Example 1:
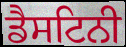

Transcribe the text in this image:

ਡੈਸਟਿਨੀ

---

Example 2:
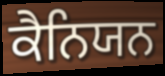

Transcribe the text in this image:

ਕੈਨਿਯਨ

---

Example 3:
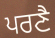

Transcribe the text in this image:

ਪਰਣੈ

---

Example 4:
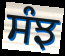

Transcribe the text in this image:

ਸੰਝ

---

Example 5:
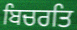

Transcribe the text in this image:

ਬਿਚਰਤਿ